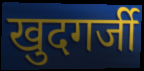
खुदगर्जी